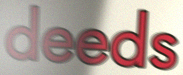
deeds